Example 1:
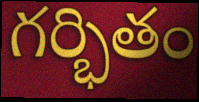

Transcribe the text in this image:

గర్భితం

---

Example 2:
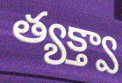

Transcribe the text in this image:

త్యక్త్వా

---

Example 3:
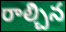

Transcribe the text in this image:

రాల్చిన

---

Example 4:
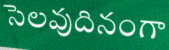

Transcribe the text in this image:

సెలవుదినంగా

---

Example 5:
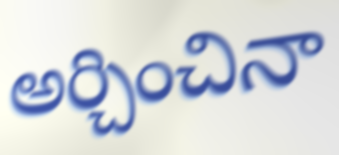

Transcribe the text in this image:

అర్చించినా